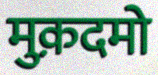
मुक़दमो